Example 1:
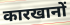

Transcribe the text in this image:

कारखानों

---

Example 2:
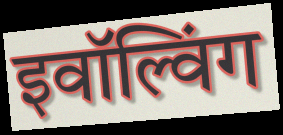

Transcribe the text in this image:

इवॉल्विंग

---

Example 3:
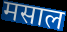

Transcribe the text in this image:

मसाल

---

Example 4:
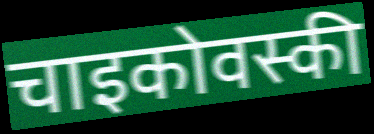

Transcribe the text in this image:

चाइकोवस्की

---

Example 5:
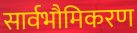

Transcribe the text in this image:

सार्वभौमिकरण